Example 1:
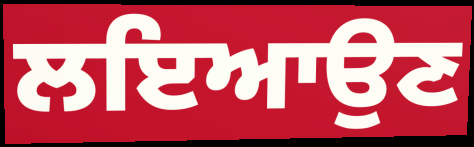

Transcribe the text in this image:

ਲਇਆਉਣ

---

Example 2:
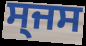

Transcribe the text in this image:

ਸ੍ਜਸ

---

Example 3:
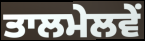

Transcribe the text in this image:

ਤਾਲਮੇਲਵੇਂ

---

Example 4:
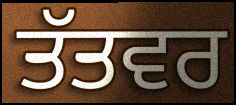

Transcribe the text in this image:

ਤੱਤਵਰ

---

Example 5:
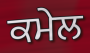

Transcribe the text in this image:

ਕਮੇਲ